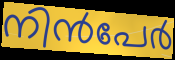
നിൻപേർ